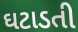
ઘટાડતી